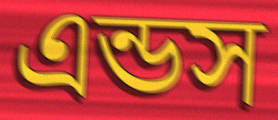
এন্ডস